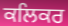
ਕਲਿਕਰ